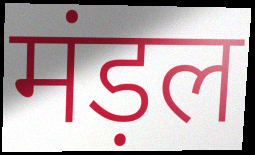
मंड़ल